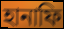
হানাফি